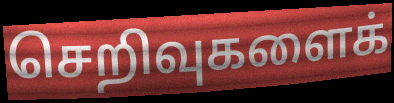
செறிவுகளைக்